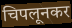
चिपलूनकर